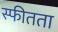
स्फीतता